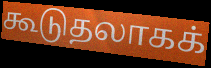
கூடுதலாகக்